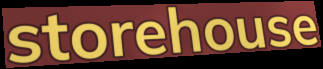
storehouse